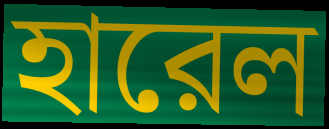
হারেল